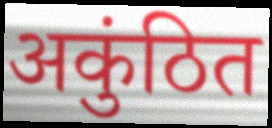
अकुंठित